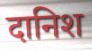
दानिश